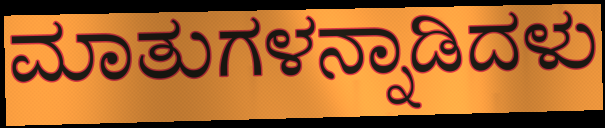
ಮಾತುಗಳನ್ನಾಡಿದಳು